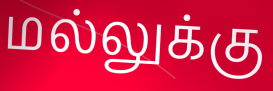
மல்லுக்கு